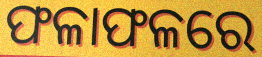
ଫଳାଫଳରେ